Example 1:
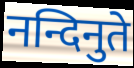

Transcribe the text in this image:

नन्दिनुते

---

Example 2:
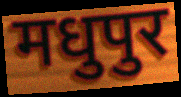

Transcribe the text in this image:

मधुपुर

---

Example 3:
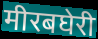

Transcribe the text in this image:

मीरबघेरी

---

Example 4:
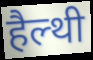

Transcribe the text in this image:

हैल्थी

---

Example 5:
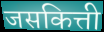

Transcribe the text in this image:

जसकित्ती